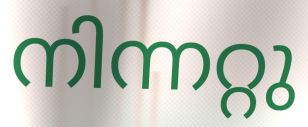
നിന്നറ്റു